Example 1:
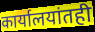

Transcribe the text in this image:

कार्यालयांतही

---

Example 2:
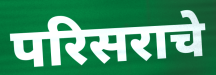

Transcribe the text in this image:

परिसराचे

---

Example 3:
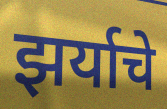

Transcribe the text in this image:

झर्याचे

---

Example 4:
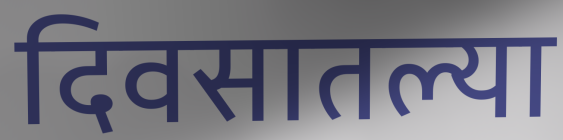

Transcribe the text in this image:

दिवसातल्या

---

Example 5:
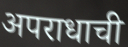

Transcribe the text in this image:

अपराधाची